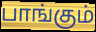
பாங்கும்